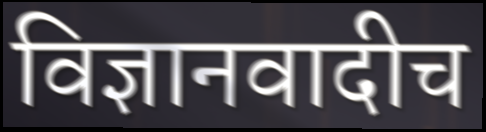
विज्ञानवादीच